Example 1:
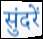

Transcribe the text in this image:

सुंदरें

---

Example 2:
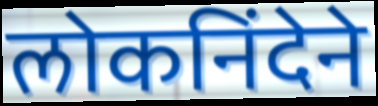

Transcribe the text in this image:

लोकनिंदेने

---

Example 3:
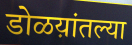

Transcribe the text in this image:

डोळय़ांतल्या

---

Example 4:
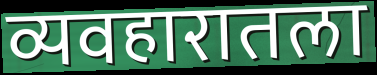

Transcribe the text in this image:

व्यवहारातला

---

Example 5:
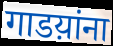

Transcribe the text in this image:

गाडय़ांना